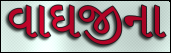
વાઘજીના